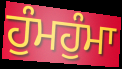
ਹੁੰਮਹੁੰਮਾ